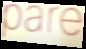
pare